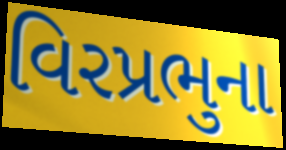
વિરપ્રભુના